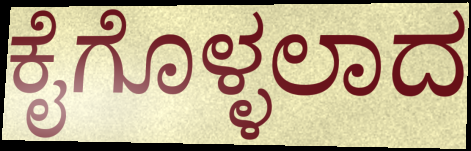
ಕೈಗೊಳ್ಳಲಾದ